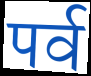
पर्व